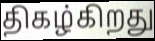
திகழ்கிறது